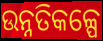
ଉନ୍ନତିକଳ୍ପେ